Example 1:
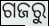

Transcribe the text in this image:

ଗଜରୁ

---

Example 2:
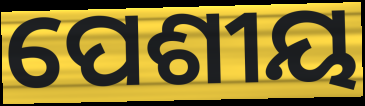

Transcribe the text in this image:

ପେଶୀୟ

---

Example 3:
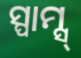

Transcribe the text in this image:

ସ୍ପାମ୍ସ୍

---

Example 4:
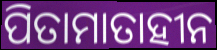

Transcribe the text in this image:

ପିତାମାତାହୀନ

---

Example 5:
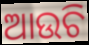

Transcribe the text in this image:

ଆଉଚି